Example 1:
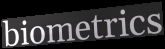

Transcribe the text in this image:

biometrics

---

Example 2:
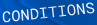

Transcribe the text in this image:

CONDITIONS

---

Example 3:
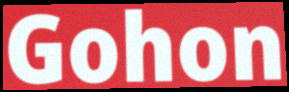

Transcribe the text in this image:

Gohon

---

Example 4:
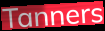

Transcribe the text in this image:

Tanners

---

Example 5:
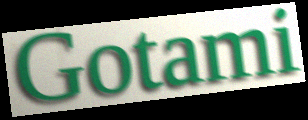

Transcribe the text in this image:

Gotami